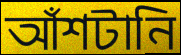
আঁশটানি